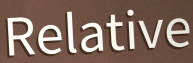
Relative